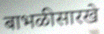
बाभळीसारखे